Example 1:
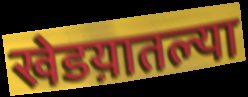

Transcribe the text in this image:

खेडय़ातल्या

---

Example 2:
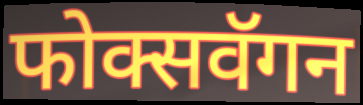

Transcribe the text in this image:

फोक्सवॅगन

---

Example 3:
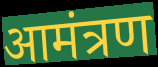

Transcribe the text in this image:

आमंत्रण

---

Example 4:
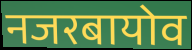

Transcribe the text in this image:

नजरबायोव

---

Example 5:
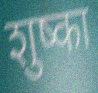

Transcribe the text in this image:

शुष्का